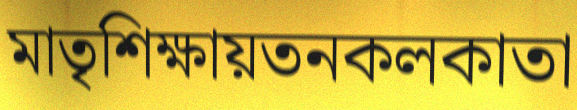
মাতৃশিক্ষায়তনকলকাতা